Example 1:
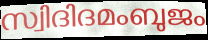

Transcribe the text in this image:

സ്വിദിദമംബുജം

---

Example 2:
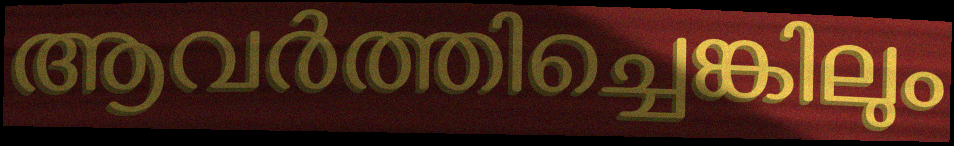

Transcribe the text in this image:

ആവർത്തിച്ചെങ്കിലും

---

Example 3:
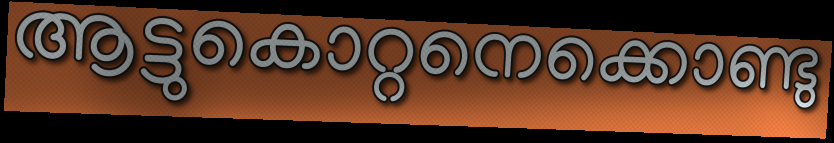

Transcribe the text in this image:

ആട്ടുകൊറ്റനെക്കൊണ്ടു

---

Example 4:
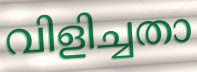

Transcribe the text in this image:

വിളിച്ചതാ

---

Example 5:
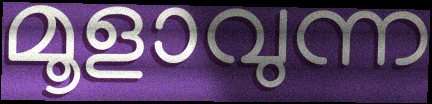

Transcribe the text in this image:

മൂളാവുന്ന